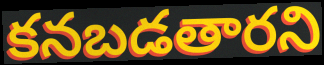
కనబడతారని